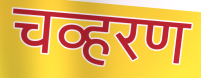
चव्हरण